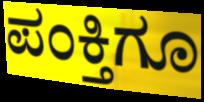
ಪಂಕ್ತಿಗೂ